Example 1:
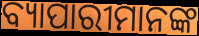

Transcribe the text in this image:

ବ୍ୟାପାରୀମାନଙ୍କ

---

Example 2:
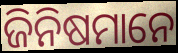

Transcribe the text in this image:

ଜିନିଷମାନେ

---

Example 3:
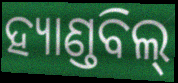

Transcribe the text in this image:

ହ୍ୟାଣ୍ଡବିଲ୍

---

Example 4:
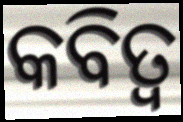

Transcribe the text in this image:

କବିତ୍ବ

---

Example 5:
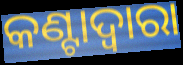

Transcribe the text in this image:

କଣ୍ଟାଦ୍ୱାରା